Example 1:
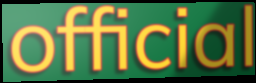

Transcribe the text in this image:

official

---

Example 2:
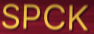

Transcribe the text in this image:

SPCK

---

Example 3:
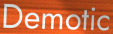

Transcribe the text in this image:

Demotic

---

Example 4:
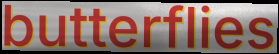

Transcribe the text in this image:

butterflies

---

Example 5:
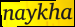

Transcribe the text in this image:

naykha